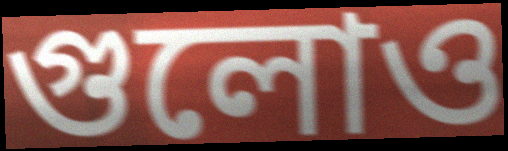
গুলোও